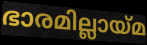
ഭാരമില്ലായ്മ